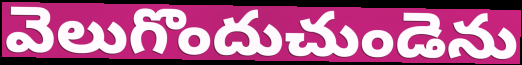
వెలుగొందుచుండెను